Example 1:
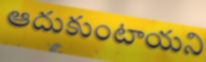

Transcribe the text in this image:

ఆదుకుంటాయని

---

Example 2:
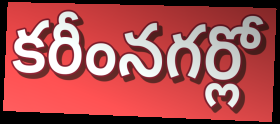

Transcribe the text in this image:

కరీంనగర్లో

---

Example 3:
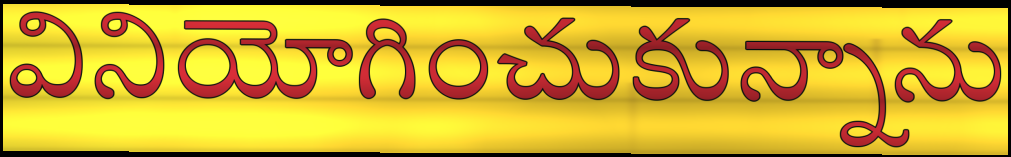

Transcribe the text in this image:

వినియోగించుకున్నాను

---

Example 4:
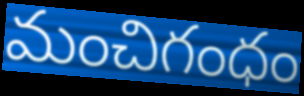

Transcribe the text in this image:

మంచిగంధం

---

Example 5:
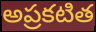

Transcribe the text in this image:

అప్రకటిత